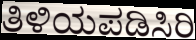
ತಿಳಿಯಪಡಿಸಿರಿ